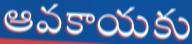
ఆవకాయకు